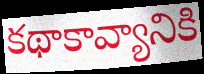
కథాకావ్యానికి